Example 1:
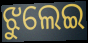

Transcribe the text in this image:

ଝୁଲେଇ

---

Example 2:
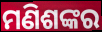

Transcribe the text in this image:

ମଣିଶଙ୍କର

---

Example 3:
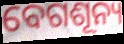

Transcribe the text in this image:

ବେଗଶୂନ୍ୟ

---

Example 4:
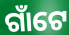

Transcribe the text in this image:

ଗାଁଟେ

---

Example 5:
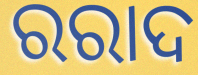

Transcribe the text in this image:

ରରାଦ